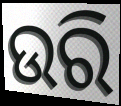
ଉରି